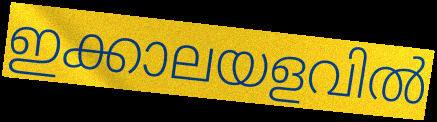
ഇക്കാലയളവിൽ